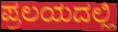
ಪ್ರಲಯದಲ್ಲಿ